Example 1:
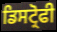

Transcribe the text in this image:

ਡਿਸਟ੍ਰੋਫੀ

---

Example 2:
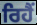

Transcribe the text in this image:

ਰਿਹੈਂ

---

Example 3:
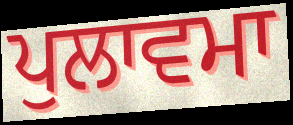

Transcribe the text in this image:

ਪੁਲਾਵਮਾ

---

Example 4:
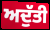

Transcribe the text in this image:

ਅਦੁੱਤੀ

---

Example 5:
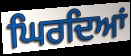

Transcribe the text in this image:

ਘਿਰਦਿਆਂ